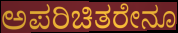
ಅಪರಿಚಿತರೇನೂ